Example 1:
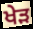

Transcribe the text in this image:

ਖੇੜ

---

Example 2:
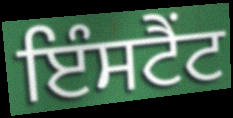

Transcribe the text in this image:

ਇੰਸਟੈਂਟ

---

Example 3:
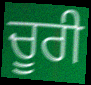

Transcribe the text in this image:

ਚੂਰੀ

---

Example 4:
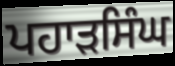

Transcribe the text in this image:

ਪਹਾੜਸਿੰਘ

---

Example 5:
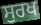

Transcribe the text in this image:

ਸੁਰਖ